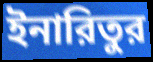
ইনারিতুর